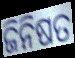
ଜିନିଷତ